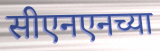
सीएनएनच्या